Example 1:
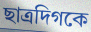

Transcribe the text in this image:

ছাত্রদিগকে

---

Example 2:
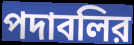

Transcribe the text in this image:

পদাবলির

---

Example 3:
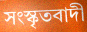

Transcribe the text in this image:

সংস্কৃতবাদী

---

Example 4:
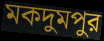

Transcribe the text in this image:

মকদুমপুর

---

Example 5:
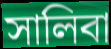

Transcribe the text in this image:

সালিবা